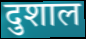
दुशाल